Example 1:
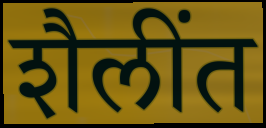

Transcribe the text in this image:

शैलींत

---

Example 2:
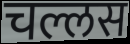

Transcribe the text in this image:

चल्लस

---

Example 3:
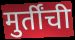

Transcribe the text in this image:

मुर्तींची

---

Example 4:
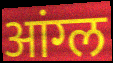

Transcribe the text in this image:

आंग्ल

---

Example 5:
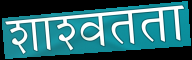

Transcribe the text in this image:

शाश्वतता